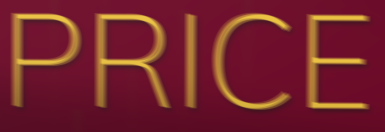
PRICE